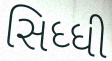
સિધ્ધી